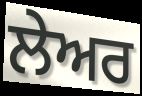
ਲੇਅਰ